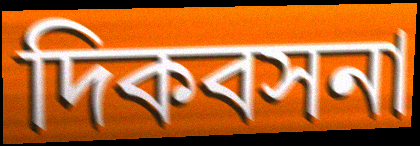
দিকবসনা